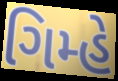
ગિમ્હે